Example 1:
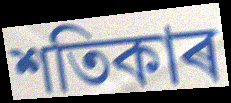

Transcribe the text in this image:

শতিকাৰ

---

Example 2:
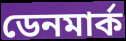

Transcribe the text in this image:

ডেনমাৰ্ক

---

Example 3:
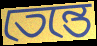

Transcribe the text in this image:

তেন্তে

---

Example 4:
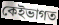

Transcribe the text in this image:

কেইভাগত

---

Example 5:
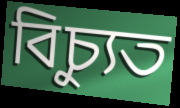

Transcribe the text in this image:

বিচ্যুত